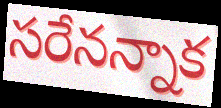
సరేనన్నాక